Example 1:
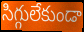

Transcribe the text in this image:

సిగ్గులేకుండా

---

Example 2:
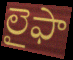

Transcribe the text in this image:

లైఫా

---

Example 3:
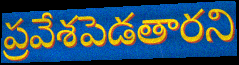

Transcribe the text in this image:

ప్రవేశపెడతారని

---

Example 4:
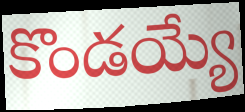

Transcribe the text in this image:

కొండయ్యే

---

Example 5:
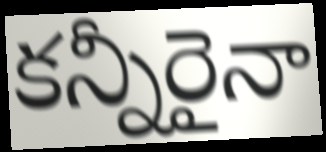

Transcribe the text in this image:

కన్నీరైనా